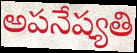
అపనేష్యతి